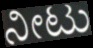
ನೀಟು